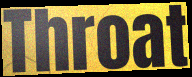
Throat